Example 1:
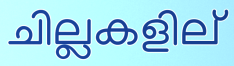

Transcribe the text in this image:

ചില്ലകളില്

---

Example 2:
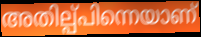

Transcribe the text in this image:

അതില്പ്പിന്നെയാണ്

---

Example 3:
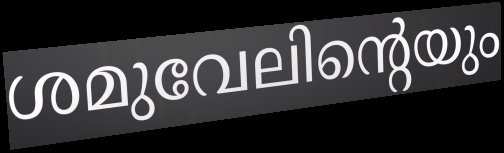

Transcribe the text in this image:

ശമുവേലിന്റെയും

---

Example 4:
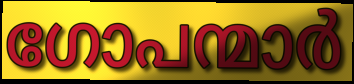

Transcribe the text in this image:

ഗോപന്മാർ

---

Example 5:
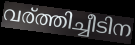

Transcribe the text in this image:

വര്ത്തിച്ചീടിന